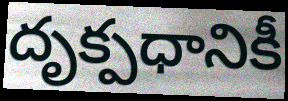
దృక్పధానికీ